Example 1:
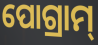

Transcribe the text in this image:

ପୋଗ୍ରାମ୍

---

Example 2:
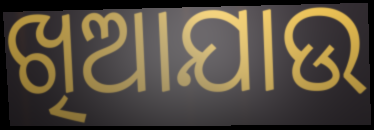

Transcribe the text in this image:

ଖିଆଯାଉ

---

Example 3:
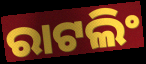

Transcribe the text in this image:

ରାଟଲିଂ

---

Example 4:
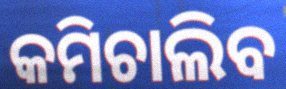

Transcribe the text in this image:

କମିଚାଲିବ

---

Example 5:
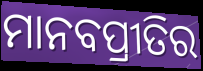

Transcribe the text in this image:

ମାନବପ୍ରୀତିର